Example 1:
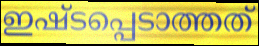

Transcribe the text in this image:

ഇഷ്ടപ്പെടാത്തത്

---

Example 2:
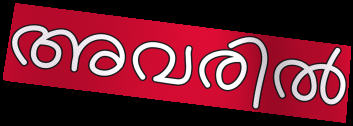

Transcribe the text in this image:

അവരിൽ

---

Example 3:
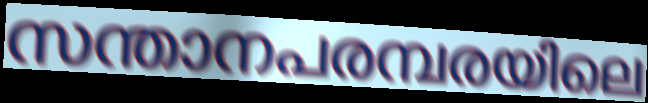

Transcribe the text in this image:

സന്താനപരമ്പരയിലെ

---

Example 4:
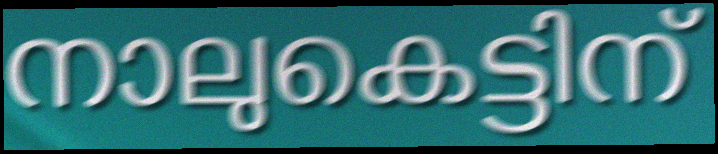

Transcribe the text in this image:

നാലുകെട്ടിന്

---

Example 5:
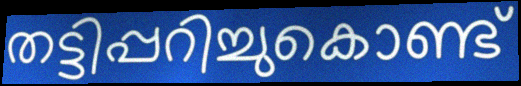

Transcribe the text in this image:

തട്ടിപ്പറിച്ചുകൊണ്ട്